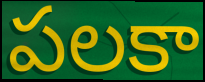
పలకా